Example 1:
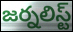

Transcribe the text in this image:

జర్నలిస్ట్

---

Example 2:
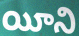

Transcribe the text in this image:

యీని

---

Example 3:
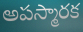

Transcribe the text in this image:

అపస్మారక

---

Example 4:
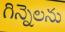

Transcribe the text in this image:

గిన్నెలను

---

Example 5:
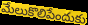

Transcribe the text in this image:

మేలుకొలిపేందుకు